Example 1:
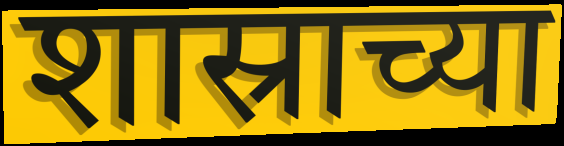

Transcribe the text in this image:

शास्राच्या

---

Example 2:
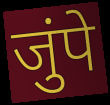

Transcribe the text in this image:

जुंपे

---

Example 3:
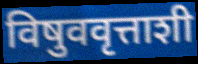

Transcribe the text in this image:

विषुववृत्ताशी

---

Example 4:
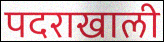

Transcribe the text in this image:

पदराखाली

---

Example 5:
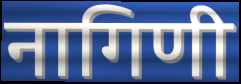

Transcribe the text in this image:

नागिणी